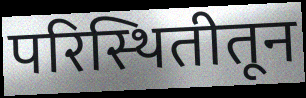
परिस्थितीतून